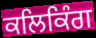
ਕਲਿਕਿੰਗ